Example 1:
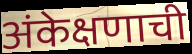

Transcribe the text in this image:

अंकेक्षणाची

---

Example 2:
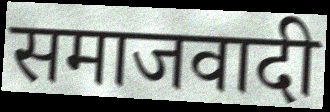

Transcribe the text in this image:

समाजवादी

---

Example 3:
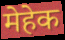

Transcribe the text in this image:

मेहेक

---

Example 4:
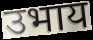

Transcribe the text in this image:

उभाय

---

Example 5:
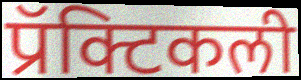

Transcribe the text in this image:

प्रॅक्टिकली